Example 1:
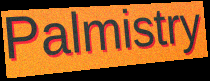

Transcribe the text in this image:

Palmistry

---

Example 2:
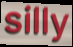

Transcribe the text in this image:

silly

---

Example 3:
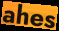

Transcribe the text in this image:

ahes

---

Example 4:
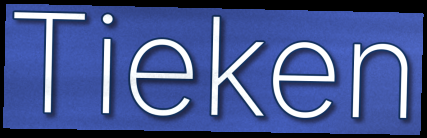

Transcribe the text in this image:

Tieken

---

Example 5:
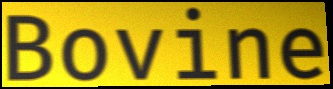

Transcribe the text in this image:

Bovine